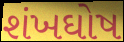
શંખઘોષ